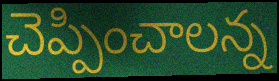
చెప్పించాలన్న